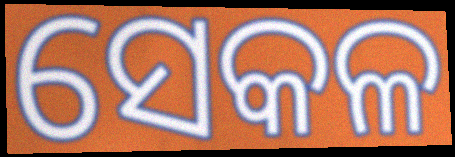
ସେକଳ